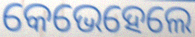
କେଭେହେଲେ